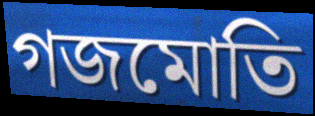
গজমোতি